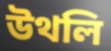
উথলি